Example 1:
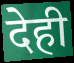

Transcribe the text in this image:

देही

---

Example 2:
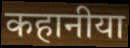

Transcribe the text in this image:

कहानीया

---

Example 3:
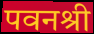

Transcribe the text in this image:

पवनश्री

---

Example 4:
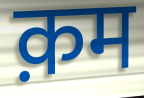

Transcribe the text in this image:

क़म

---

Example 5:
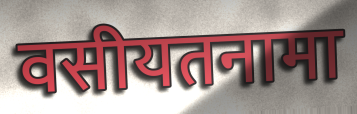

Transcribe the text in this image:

वसीयतनामा